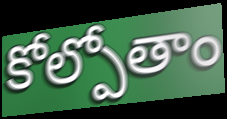
కోల్పోతాం